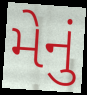
મેનું